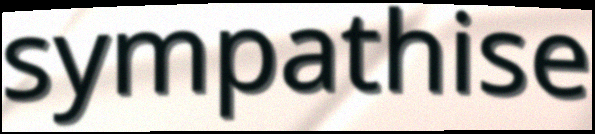
sympathise